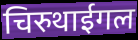
चिरुथाईगल